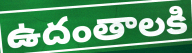
ఉదంతాలకి